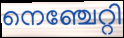
നെഞ്ചേറ്റി